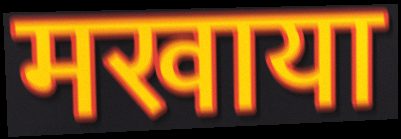
मखाया